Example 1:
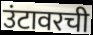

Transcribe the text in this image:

उंटावरची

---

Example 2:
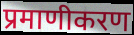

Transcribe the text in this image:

प्रमाणीकरण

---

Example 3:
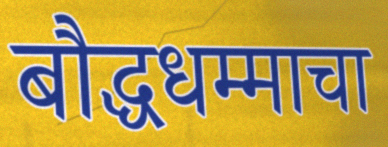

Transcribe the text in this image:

बौद्धधम्माचा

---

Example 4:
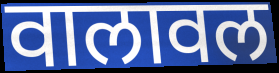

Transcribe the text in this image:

वालावल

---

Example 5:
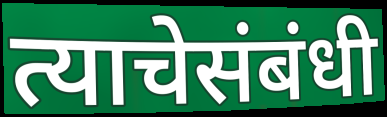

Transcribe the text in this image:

त्याचेसंबंधी